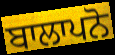
ਬਾਲਾਪਨੋ